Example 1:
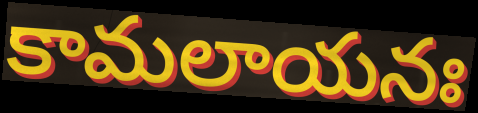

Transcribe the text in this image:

కామలాయనః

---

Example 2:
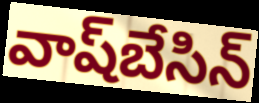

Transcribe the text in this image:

వాష్‌బేసిన్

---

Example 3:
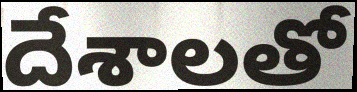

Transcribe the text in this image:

దేశాలతో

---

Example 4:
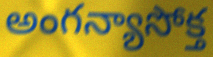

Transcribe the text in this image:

అంగన్యాసోక్త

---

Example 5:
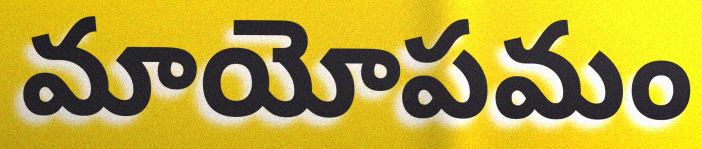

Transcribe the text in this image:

మాయోపమం